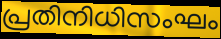
പ്രതിനിധിസംഘം